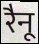
रैनू